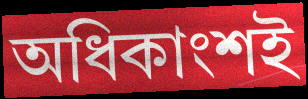
অধিকাংশই